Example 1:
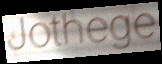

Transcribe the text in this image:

Jothege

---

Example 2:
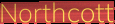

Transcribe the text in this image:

Northcott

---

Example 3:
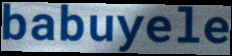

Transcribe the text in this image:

babuyele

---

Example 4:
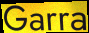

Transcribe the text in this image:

Garra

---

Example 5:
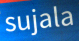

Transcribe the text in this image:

sujala